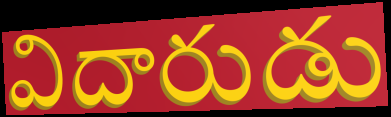
విదారుడు